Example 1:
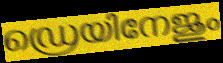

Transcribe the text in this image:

ഡ്രെയിനേജും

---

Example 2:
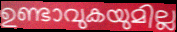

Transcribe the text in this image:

ഉണ്ടാവുകയുമില്ല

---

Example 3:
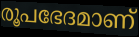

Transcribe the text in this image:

രൂപഭേദമാണ്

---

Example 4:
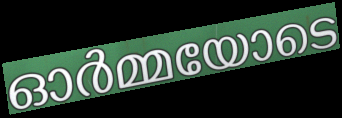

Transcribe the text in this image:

ഓർമ്മയോടെ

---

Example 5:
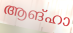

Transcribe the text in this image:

ആങ്ഹാ